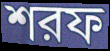
শরফ